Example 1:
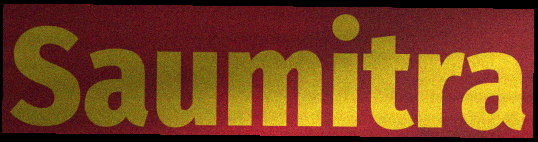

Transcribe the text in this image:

Saumitra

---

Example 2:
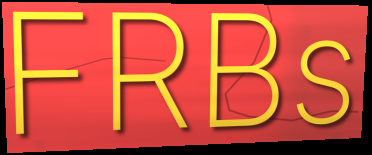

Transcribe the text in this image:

FRBs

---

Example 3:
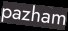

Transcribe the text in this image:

pazham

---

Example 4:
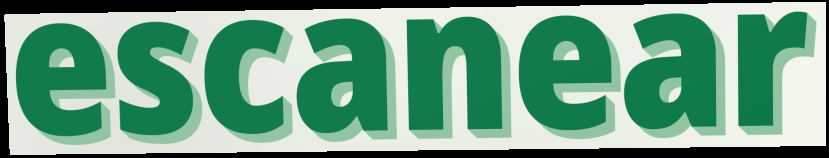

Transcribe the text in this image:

escanear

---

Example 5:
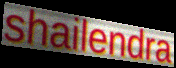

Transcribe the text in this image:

shailendra